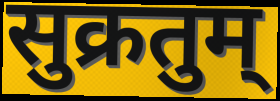
सुक्रतुम्